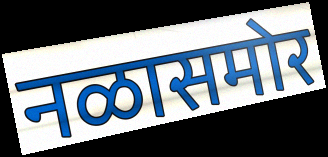
नळासमोर